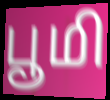
பூமி